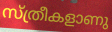
സ്ത്രീകളാണു